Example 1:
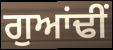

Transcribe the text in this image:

ਗੁਆਂਢੀਂ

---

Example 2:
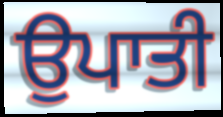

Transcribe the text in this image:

ਉਪਾਤੀ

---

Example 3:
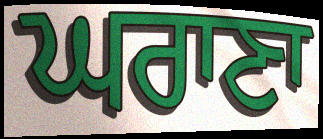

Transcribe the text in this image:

ਘਰਾਣਾ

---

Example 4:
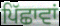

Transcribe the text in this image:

ਪਿੱਛਾਵਾਂ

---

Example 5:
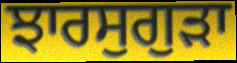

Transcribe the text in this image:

ਝਾਰਸੁਗੁੜਾ